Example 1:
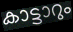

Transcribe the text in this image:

കാട്ടാറും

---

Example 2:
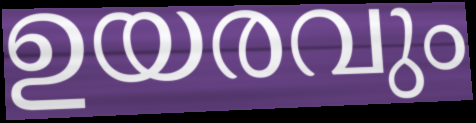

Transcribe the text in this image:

ഉയരവും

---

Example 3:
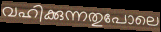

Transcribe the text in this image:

വഹിക്കുന്നതുപോലെ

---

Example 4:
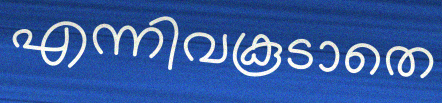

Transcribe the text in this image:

എന്നിവകൂടാതെ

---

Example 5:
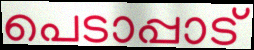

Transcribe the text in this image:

പെടാപ്പാട്